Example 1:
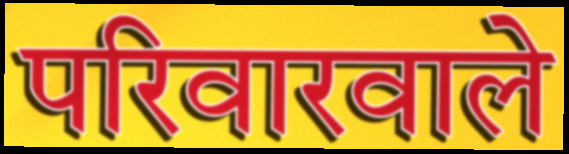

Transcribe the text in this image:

परिवारवाले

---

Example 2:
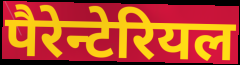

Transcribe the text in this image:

पैरेन्टेरियल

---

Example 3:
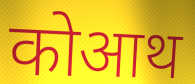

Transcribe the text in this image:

कोआथ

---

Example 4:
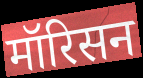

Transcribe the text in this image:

मॉरिसन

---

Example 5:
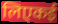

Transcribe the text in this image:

लिएकई